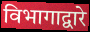
विभागाद्वारे